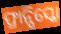
ଫ୍ରାନ୍ସିସ୍କୋ